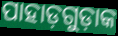
ପାହାଡ଼ଗୁଡ଼ାକ